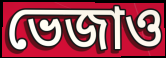
ভেজাও